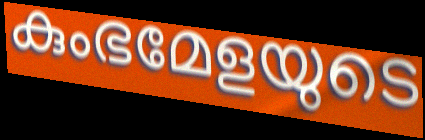
കുംഭമേളയുടെ